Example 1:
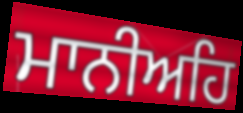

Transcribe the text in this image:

ਮਾਨੀਅਹਿ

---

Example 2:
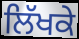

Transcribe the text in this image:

ਲਿੱਖਕੇ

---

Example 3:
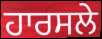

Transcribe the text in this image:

ਹਾਰਸਲੇ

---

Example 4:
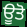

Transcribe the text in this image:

ਊਤੋ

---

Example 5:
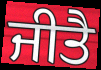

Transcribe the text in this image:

ਜੀਤੈ